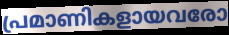
പ്രമാണികളായവരോ